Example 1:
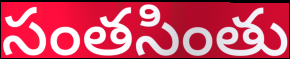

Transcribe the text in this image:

సంతసింతు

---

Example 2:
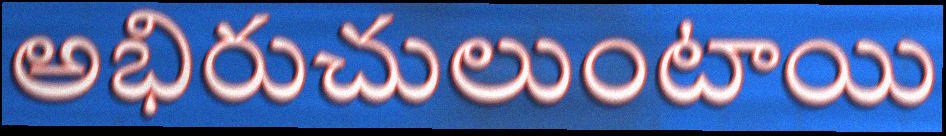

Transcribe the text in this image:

అభిరుచులుంటాయి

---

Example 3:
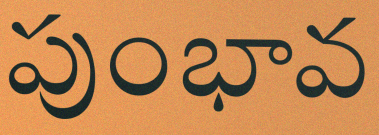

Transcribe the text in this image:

పుంభావ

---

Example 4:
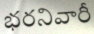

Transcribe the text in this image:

భరనివారీ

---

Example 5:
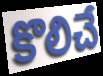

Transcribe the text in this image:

కొలిచే